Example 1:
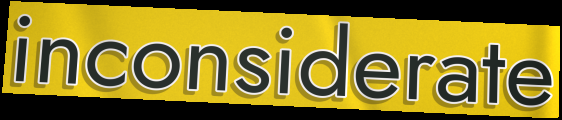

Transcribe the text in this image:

inconsiderate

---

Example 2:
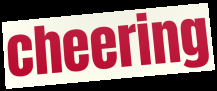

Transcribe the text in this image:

cheering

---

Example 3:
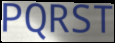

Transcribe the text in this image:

PQRST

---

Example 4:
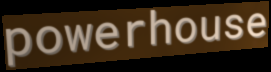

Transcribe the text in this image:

powerhouse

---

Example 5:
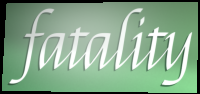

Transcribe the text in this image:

fatality